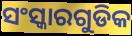
ସଂସ୍କାରଗୁଡିକ